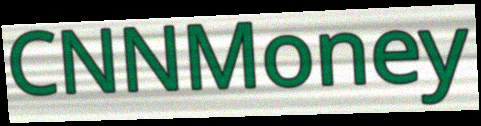
CNNMoney